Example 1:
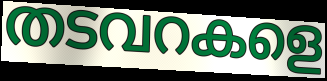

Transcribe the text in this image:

തടവറകളെ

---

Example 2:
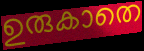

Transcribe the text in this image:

ഉരുകാതെ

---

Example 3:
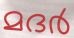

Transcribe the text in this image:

മദർ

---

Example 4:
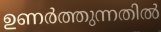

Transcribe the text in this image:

ഉണർത്തുന്നതിൽ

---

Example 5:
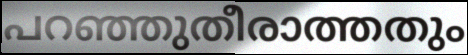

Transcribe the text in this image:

പറഞ്ഞുതീരാത്തതും